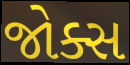
જોક્સ